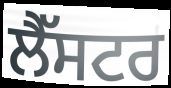
ਲੈੱਸਟਰ